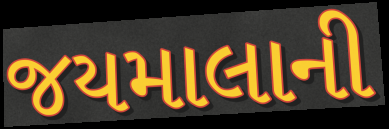
જયમાલાની